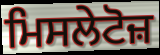
ਮਿਸਲੇਟੋਜ਼